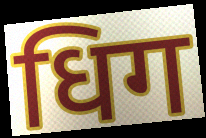
धिग